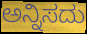
ಅನ್ನಿಸದು